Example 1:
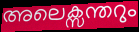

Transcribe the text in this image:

അലെക്സന്തറും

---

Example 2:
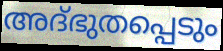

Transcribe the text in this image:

അദ്ഭുതപ്പെടും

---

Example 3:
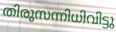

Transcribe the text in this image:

തിരുസന്നിധിവിട്ടു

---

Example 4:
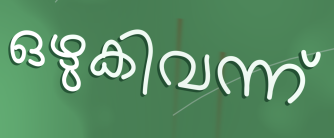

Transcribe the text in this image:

ഒഴുകിവന്ന്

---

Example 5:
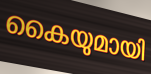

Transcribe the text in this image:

കൈയുമായി